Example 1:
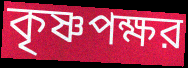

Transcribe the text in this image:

কৃষ্ণপক্ষর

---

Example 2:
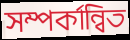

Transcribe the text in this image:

সম্পর্কান্বিত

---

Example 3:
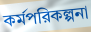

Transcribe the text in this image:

কর্মপরিকল্পনা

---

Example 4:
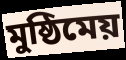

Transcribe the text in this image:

মুষ্ঠিমেয়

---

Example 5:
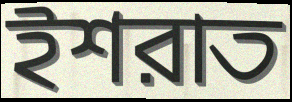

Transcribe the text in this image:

ইশরাত